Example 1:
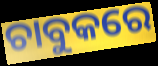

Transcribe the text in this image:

ଚାବୁକରେ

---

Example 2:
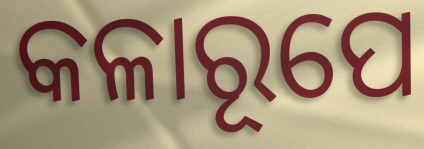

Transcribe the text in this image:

କଳାରୂପେ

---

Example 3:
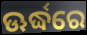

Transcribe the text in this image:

ଊର୍ଦ୍ଧରେ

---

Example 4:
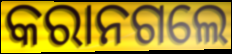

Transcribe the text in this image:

କରାନଗଲେ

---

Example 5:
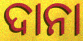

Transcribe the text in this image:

ଦାନା